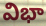
విభా